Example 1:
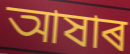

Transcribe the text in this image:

আষাৰ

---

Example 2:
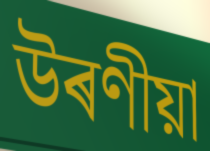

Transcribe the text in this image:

উৰণীয়া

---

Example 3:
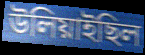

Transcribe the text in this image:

উলিয়াইছিল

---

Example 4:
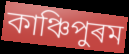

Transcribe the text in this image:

কাঞ্চিপুৰম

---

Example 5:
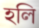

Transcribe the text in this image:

হলি